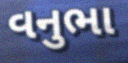
વનુભા